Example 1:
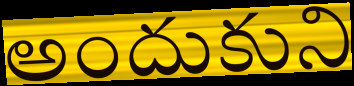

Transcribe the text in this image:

అందుకుని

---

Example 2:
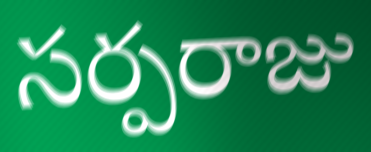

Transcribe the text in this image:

సర్పరాజు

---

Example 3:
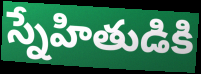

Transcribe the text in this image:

స్నేహితుడికి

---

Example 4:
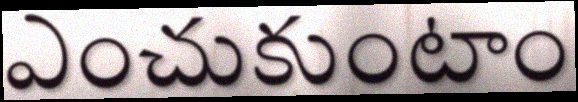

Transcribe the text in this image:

ఎంచుకుంటాం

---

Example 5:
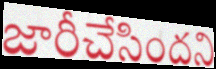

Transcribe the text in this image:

జారీచేసిందని